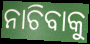
ନାଚିବାକୁ